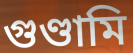
গুণ্ডামি